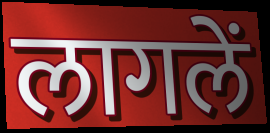
लागलें